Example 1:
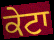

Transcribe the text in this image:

ਕੇਟਾ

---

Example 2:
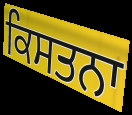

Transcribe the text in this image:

ਕਿਸਤਨਾ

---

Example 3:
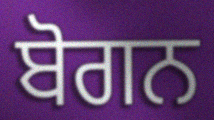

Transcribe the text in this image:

ਬੋਗਨ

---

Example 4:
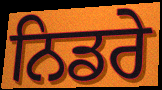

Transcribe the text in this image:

ਨਿਡਰੇ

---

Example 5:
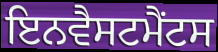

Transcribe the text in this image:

ਇਨਵੈਸਟਮੈਂਟਸ